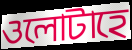
ওলোটাহে